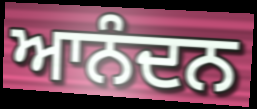
ਆਨੰਦਨ